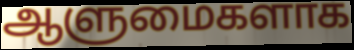
ஆளுமைகளாக